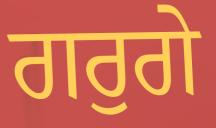
ਗਰੁਗੇ